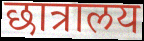
छात्रालय